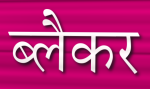
ब्लैकर